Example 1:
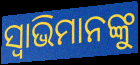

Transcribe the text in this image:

ସ୍ୱାଭିମାନଙ୍କୁ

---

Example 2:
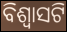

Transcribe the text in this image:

ବିଶ୍ୱାସଟି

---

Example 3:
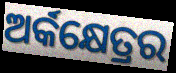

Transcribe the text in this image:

ଅର୍କକ୍ଷେତ୍ରର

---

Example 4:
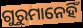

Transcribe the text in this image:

ଗୁରୁମାନେହିଁ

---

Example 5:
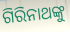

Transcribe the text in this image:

ଗିରିନାଥଙ୍କୁ